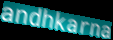
andhkarna